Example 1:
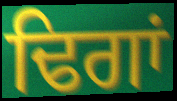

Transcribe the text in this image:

ਢਿਗਾਂ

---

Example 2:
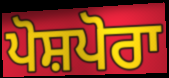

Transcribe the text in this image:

ਪੋਸ਼ਪੋਰਾ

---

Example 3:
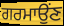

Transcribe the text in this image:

ਗਰਮਾਉਂਣ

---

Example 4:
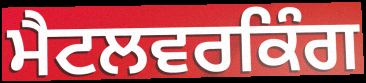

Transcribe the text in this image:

ਮੈਟਲਵਰਕਿੰਗ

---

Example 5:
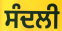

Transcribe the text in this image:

ਸੰਦਲੀ